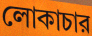
লোকাচার